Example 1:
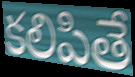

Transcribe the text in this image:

కలిపితే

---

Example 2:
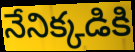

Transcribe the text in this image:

నేనిక్కడికి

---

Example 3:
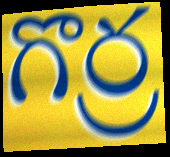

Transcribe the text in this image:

గొర్ర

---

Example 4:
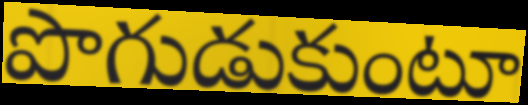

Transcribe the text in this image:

పొగుడుకుంటూ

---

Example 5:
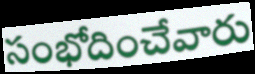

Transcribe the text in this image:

సంభోదించేవారు